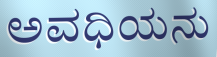
ಅವಧಿಯನು